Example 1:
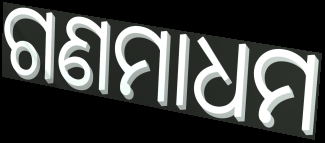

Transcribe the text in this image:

ଗଣମାଧମ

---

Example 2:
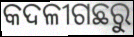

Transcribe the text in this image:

କଦଳୀଗଛରୁ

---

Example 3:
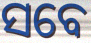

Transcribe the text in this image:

ସବେ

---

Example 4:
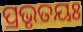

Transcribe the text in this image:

ପ୍ରଭୃତୟଃ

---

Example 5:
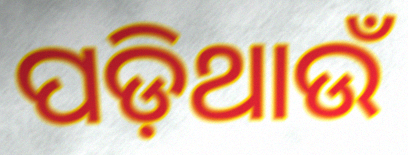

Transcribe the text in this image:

ପଡ଼ିଥାଉଁ